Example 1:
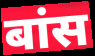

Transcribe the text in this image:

बांस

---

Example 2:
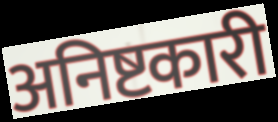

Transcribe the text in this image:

अनिष्टकारी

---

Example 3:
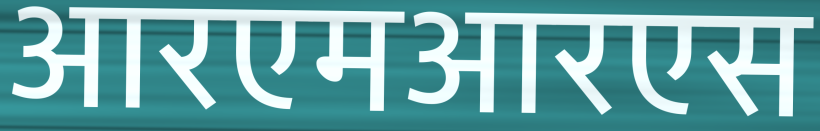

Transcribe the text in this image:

आरएमआरएस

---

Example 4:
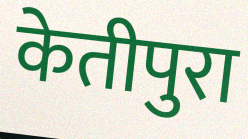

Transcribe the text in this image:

केतीपुरा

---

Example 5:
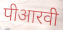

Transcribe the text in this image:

पीआरवी